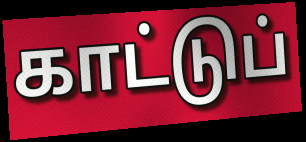
காட்டுப்